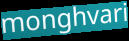
monghvari